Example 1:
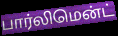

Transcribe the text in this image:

பார்லிமென்ட்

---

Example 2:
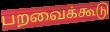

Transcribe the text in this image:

பறவைக்கூடு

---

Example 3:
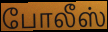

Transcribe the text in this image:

போலீஸ்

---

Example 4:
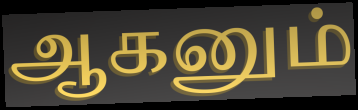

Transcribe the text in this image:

ஆகனும்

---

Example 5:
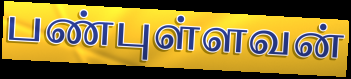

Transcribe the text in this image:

பண்புள்ளவன்